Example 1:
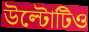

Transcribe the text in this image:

উল্টোটিও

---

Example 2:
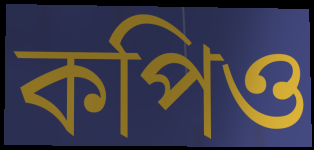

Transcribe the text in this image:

কপিও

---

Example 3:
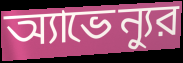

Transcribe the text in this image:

অ্যাভেন্যুর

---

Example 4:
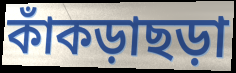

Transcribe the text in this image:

কাঁকড়াছড়া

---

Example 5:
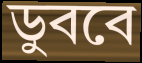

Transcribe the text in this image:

ডুববে